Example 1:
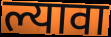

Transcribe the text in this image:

ल्यावा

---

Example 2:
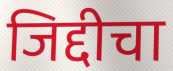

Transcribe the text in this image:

जिद्दीचा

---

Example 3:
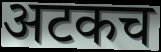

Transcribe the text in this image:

अटकच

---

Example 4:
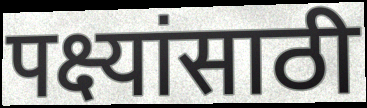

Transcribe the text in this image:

पक्ष्यांसाठी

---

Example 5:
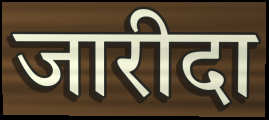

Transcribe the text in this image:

जारीदा